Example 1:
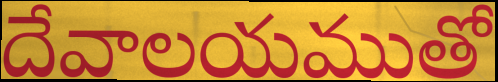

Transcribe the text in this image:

దేవాలయముతో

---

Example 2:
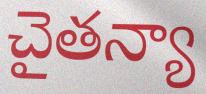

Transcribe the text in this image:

చైతన్యా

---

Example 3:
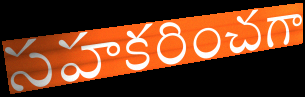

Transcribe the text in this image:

సహకరించగా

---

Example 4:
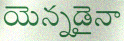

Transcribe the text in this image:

యెన్నడైనా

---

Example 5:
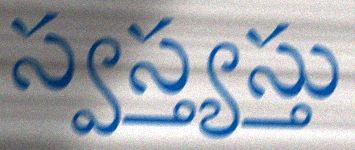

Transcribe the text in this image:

స్వస్త్యస్తు